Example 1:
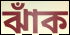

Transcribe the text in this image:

ঝাঁক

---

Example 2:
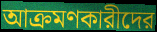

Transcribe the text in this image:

আক্রমণকারীদের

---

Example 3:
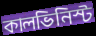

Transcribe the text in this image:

কালভিনিস্ট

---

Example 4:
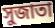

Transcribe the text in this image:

সুজাতা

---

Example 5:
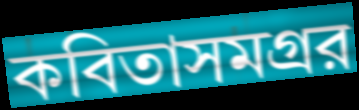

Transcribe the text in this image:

কবিতাসমগ্রর